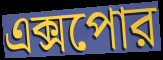
এক্সপোর